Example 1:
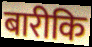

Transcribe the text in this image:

बारीकि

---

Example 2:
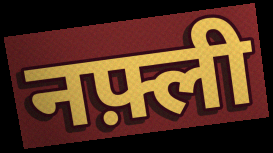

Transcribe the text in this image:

नफ़्ली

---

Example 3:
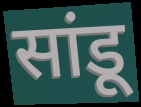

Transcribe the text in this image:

सांडू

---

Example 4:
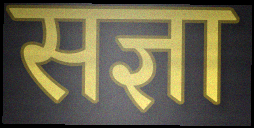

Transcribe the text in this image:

सज्ञा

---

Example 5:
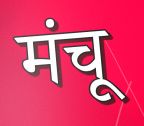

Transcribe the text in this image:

मंचू